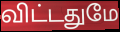
விட்டதுமே